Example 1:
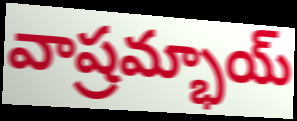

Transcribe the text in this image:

వాష్రమ్భాయ్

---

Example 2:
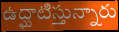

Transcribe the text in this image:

ఉద్ఘాటిస్తున్నారు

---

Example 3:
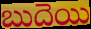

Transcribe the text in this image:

బుదెయి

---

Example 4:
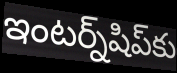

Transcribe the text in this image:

ఇంటర్న్‌షిప్‌కు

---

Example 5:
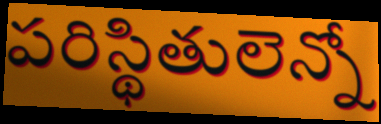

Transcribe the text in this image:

పరిస్థితులెన్నో